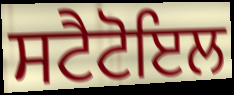
ਸਟੈਟੋਇਲ